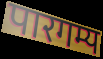
पारगम्य